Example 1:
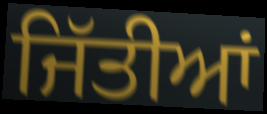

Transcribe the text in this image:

ਜਿੱਤੀਆਂ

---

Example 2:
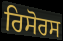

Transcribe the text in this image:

ਰਿਸੋਰਸ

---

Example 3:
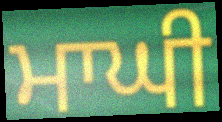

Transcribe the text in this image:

ਮਾਘੀ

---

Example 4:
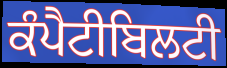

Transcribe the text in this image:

ਕੰਪੈਟੀਬਿਲਟੀ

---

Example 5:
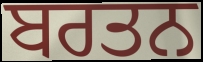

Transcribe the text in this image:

ਬਰਤਨ